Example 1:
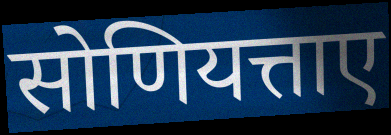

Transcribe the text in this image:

सोणियत्ताए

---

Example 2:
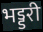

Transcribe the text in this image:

भड्डरी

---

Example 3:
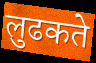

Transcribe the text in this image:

लुढकते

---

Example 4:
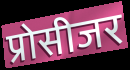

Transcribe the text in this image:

प्रोसीजर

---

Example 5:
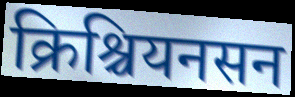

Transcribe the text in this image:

क्रिश्चियनसन